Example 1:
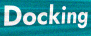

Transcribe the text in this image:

Docking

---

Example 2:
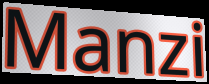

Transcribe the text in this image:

Manzi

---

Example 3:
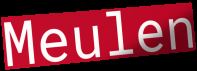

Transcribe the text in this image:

Meulen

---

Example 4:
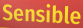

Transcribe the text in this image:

Sensible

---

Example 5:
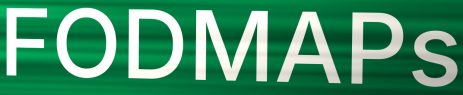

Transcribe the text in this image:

FODMAPs